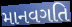
માનવગતિ